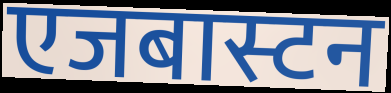
एजबास्टन